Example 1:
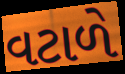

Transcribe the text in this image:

વટાળે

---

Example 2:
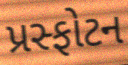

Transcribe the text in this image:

પ્રસ્ફોટન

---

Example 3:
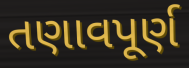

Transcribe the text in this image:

તણાવપૂર્ણ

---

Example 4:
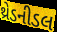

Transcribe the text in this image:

થ્રેડનીડલ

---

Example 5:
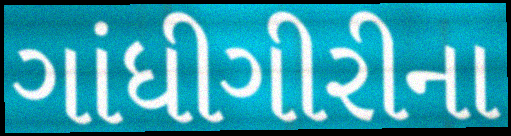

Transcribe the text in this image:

ગાંધીગીરીના